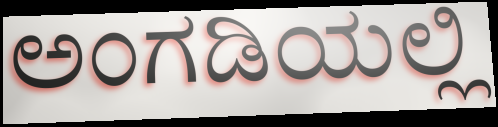
ಅಂಗಡಿಯಲ್ಲಿ